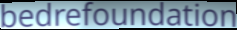
bedrefoundation